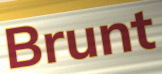
Brunt